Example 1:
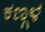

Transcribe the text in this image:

ಕಣ್ಗಳ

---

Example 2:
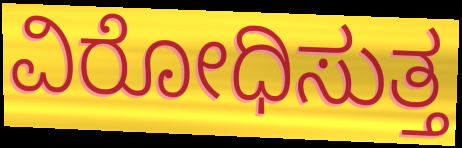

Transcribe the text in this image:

ವಿರೋಧಿಸುತ್ತ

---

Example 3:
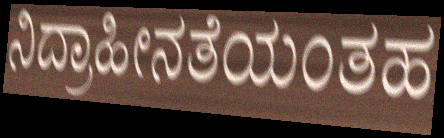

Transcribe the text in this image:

ನಿದ್ರಾಹೀನತೆಯಂತಹ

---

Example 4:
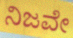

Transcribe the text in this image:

ನಿಜವೇ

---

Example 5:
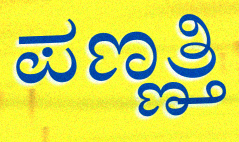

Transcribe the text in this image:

ಪಣ್ಣತ್ತಿ